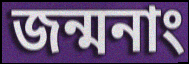
জন্মনাং